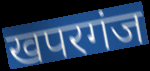
खपरगंज